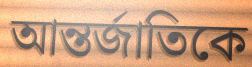
আন্তর্জাতিকে